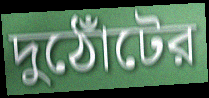
দুঠোঁটের